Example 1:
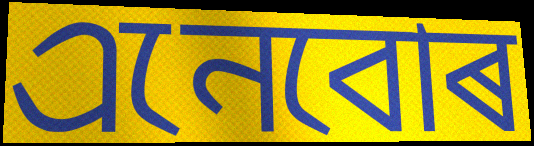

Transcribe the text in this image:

এনেবোৰ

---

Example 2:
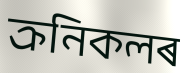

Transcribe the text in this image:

ক্ৰনিকলৰ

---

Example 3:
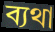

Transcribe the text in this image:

ব্যথা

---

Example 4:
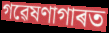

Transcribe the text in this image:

গৱেষণাগাৰত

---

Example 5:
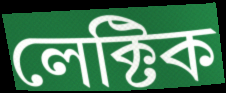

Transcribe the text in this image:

লেক্টিক